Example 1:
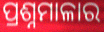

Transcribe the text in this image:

ପ୍ରଶ୍ନମାଳାର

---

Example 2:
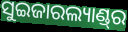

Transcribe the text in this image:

ସୁଇଜାରଲ୍ୟାଣ୍ଡ୍‌ର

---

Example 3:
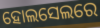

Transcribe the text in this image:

ହୋଲସେଲରେ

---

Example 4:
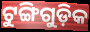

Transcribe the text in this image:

ଟୁଙ୍ଗିଗୁଡ଼ିକ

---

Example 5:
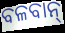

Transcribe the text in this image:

ବଳବାନ୍